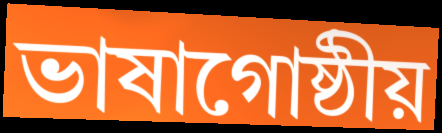
ভাষাগোষ্ঠীয়